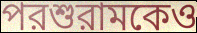
পরশুরামকেও